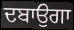
ਦਬਾਉਗਾ